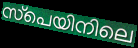
സ്‌പെയിനിലെ